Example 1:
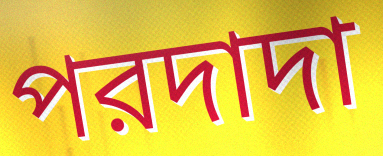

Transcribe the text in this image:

পরদাদা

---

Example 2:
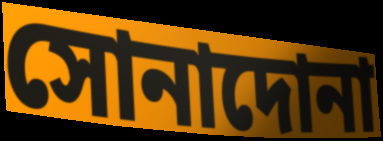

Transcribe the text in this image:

সোনাদোনা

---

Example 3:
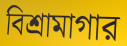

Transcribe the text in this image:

বিশ্রামাগার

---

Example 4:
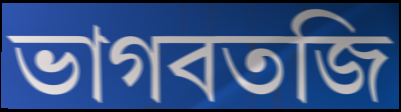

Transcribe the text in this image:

ভাগবতজি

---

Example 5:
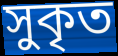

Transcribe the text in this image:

সুকৃত